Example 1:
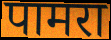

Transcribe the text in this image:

पामरा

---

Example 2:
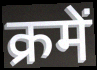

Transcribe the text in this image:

क्रमें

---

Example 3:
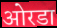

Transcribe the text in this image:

ओरडा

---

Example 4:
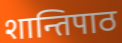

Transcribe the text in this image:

शान्तिपाठ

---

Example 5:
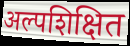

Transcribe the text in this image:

अल्पशिक्षित